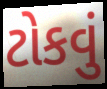
ટોકવું